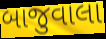
બાજુવાલા